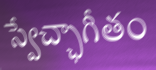
స్వేచ్ఛాగీతం